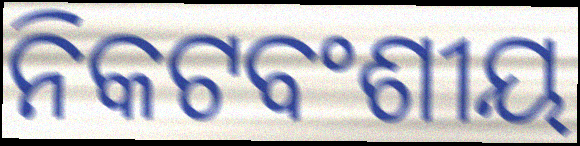
ନିକଟବଂଶୀୟ